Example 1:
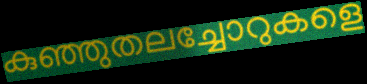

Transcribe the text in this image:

കുഞ്ഞുതലച്ചോറുകളെ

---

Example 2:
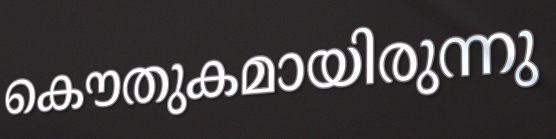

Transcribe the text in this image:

കൌതുകമായിരുന്നു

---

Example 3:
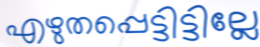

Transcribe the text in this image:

എഴുതപ്പെട്ടിട്ടില്ലേ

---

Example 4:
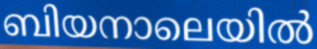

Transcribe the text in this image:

ബിയനാലെയിൽ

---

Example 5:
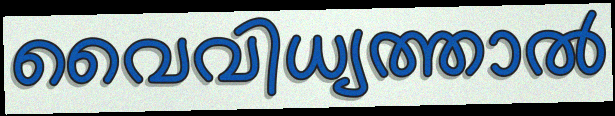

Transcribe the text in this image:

വൈവിധ്യത്താൽ